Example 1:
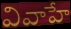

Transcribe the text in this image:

వివాహే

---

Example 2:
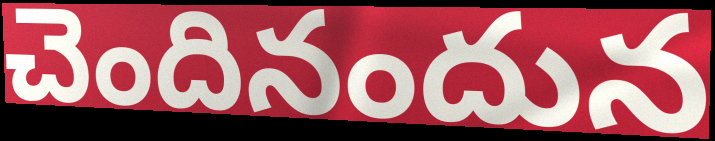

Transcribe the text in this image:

చెందినందున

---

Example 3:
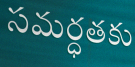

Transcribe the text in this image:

సమర్ధతకు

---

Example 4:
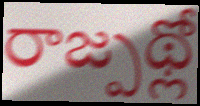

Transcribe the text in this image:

రాజ్పథ్లో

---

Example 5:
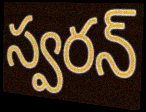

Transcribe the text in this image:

స్వరన్